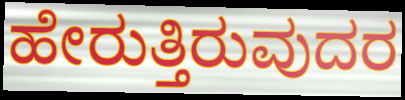
ಹೇರುತ್ತಿರುವುದರ